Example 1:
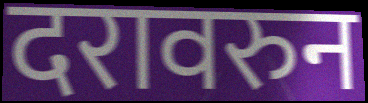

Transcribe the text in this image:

दरावरुन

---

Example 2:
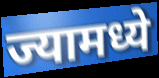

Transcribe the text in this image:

ज्यामध्ये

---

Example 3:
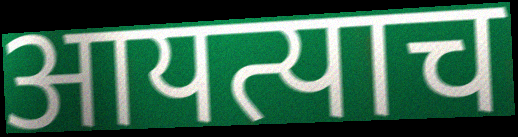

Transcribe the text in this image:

आयत्याच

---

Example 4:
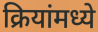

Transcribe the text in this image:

क्रियांमध्ये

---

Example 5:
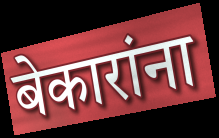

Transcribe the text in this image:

बेकारांना